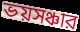
ভয়সঞ্চার